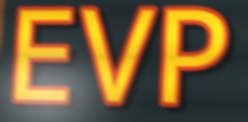
EVP